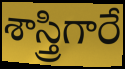
శాస్త్రిగారే